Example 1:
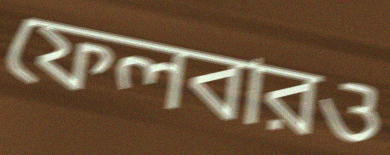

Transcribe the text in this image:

ফেলবারও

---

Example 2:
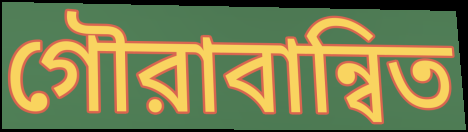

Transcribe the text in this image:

গৌরাবান্বিত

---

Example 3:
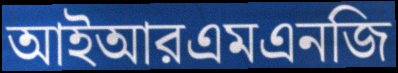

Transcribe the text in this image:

আইআরএমএনজি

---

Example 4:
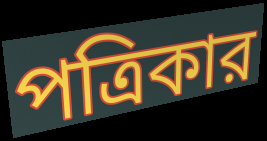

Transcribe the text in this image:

পত্রিকার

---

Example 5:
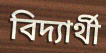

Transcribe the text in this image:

বিদ্যার্থী